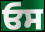
ਓਸ